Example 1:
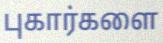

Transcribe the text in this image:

புகார்களை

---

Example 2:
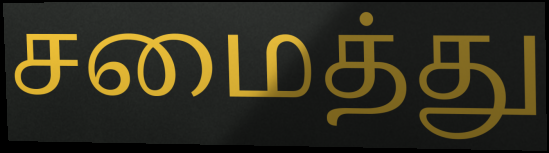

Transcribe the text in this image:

சமைத்து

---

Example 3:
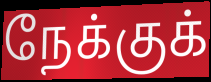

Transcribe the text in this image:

நேக்குக்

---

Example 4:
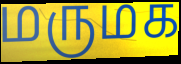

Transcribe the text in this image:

மருமக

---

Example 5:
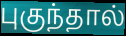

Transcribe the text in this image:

புகுந்தால்